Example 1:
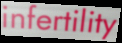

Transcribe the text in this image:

infertility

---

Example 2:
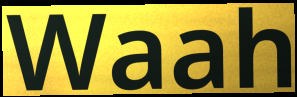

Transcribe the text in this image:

Waah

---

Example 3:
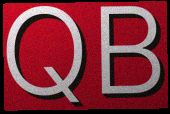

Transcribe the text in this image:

QB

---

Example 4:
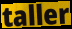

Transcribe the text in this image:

taller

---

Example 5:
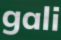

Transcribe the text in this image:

gali